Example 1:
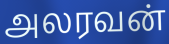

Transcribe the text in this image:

அலரவன்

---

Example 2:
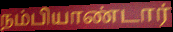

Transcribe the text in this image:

நம்பியாண்டார்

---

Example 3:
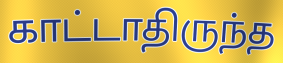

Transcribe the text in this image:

காட்டாதிருந்த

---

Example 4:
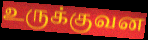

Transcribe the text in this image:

உருக்குவன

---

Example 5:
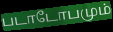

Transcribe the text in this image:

படாடோபமும்